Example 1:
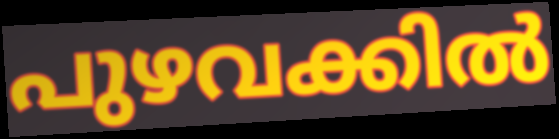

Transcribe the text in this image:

പുഴവക്കിൽ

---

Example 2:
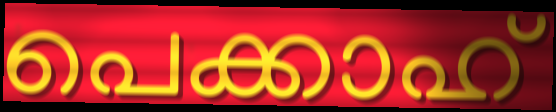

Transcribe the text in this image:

പെക്കാഹ്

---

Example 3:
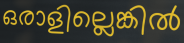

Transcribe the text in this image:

ഒരാളില്ലെങ്കിൽ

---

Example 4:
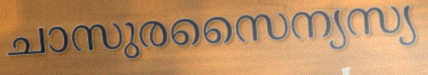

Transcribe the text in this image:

ചാസുരസൈന്യസ്യ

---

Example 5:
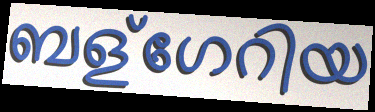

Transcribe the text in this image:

ബള്ഗേറിയ